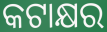
କଟାକ୍ଷର